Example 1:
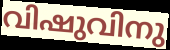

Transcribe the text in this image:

വിഷുവിനു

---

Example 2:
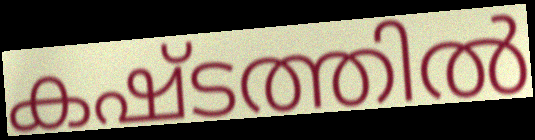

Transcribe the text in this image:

കഷ്ടത്തിൽ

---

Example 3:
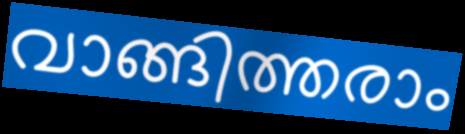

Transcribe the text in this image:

വാങ്ങിത്തരാം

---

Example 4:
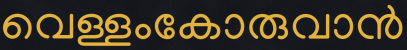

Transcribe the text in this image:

വെള്ളംകോരുവാൻ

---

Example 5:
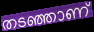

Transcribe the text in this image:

തടഞ്ഞാണ്